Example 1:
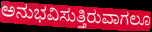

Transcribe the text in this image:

ಅನುಭವಿಸುತ್ತಿರುವಾಗಲೂ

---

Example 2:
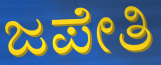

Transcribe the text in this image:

ಜಪೇತಿ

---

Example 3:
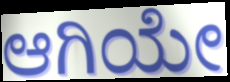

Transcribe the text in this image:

ಆಗಿಯೇ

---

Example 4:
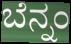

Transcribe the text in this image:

ಬೆನ್ನಂ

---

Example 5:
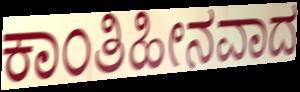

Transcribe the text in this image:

ಕಾಂತಿಹೀನವಾದ